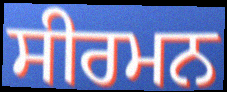
ਸੀਰਮਨ